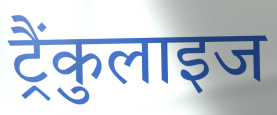
ट्रैंकुलाइज